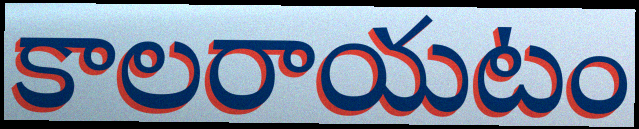
కాలరాయటం